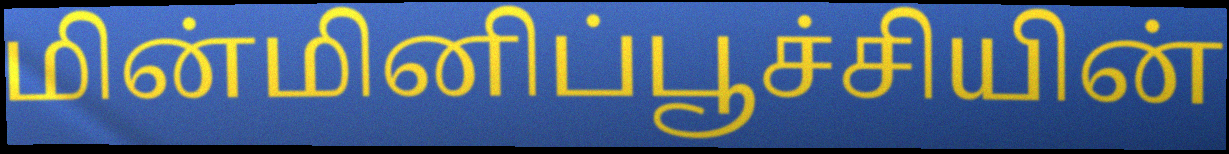
மின்மினிப்பூச்சியின்